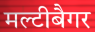
मल्‍टीबैगर